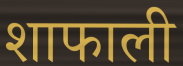
शाफाली